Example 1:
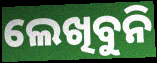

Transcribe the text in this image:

ଲେଖିବୁନି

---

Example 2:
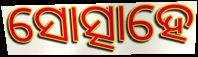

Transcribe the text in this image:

ସୋତ୍ସାହେ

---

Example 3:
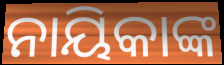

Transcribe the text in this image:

ନାୟିକାଙ୍କ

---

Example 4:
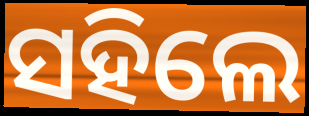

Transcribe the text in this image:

ସହିଲେ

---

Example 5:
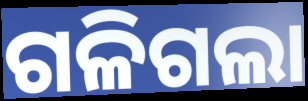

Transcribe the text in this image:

ଗଳିଗଲା